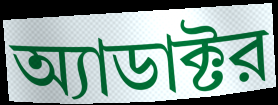
অ্যাডাক্টর